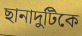
ছানাদুটিকে